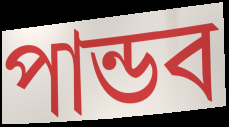
পান্ডব